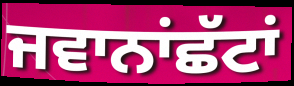
ਜਵਾਨਾਂਛੱਟਾਂ